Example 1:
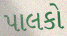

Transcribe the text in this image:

પાલકો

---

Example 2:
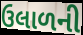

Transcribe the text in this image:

ઉલાળની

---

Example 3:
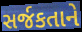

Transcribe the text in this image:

સર્જકતાને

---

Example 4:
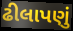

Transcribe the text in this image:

ઢીલાપણું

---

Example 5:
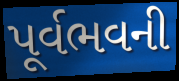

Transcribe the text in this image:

પૂર્વભવની